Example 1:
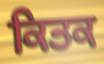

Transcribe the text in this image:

ਕਿਤਕ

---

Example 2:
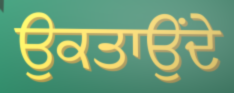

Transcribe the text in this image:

ਉਕਤਾਉਂਦੇ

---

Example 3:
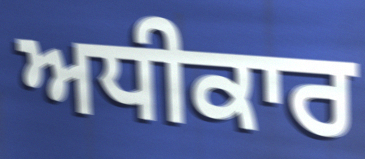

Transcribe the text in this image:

ਅਧੀਕਾਰ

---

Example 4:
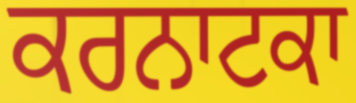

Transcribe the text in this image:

ਕਰਨਾਟਕਾ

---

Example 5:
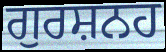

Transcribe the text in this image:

ਗੁਰਸ਼ਨਹ